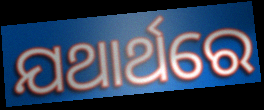
ଯଥାର୍ଥରେ